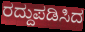
ರದ್ದುಪಡಿಸಿದ